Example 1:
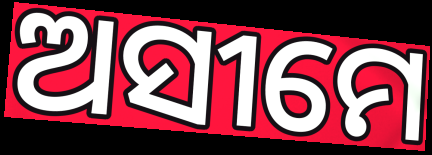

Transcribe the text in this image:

ଅସୀମେ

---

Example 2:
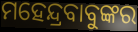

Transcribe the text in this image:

ମହେନ୍ଦ୍ରବାବୁଙ୍କର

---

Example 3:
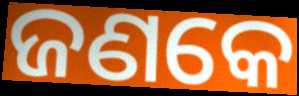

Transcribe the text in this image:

ଜଣକେ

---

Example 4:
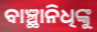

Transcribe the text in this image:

ବାଞ୍ଛାନିଧିଙ୍କୁ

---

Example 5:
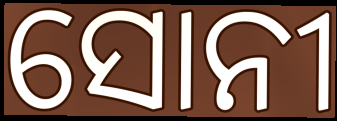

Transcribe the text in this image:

ସୋନୀ